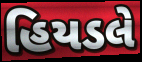
હિયડલે